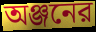
অঞ্জনের